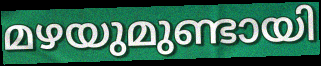
മഴയുമുണ്ടായി